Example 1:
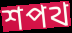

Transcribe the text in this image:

শপথ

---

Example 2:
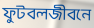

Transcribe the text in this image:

ফুটবলজীবনে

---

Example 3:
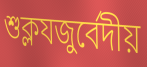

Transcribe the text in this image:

শুক্লযজুর্বেদীয়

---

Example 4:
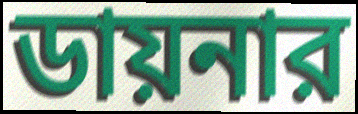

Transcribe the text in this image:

ডায়নার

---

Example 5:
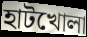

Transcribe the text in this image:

হাটখোলা